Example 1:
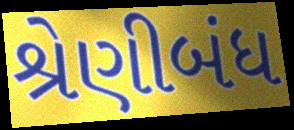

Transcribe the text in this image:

શ્રેણીબંધ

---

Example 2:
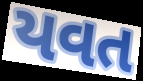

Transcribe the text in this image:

યવત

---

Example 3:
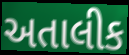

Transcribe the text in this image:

અતાલીક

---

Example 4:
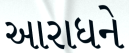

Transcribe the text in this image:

આરાધને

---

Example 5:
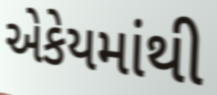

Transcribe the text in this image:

એકેયમાંથી